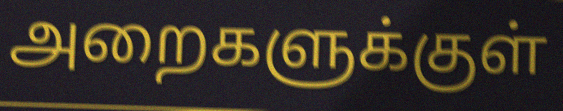
அறைகளுக்குள்